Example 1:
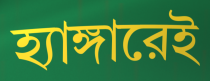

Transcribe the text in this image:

হ্যাঙ্গারেই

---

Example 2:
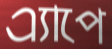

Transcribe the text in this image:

এ্যাপে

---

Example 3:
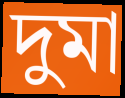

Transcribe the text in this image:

দুমা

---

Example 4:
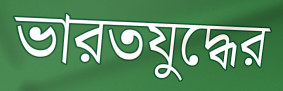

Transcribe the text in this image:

ভারতযুদ্ধের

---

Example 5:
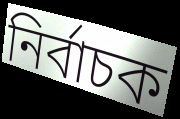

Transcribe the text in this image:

নির্বাচক